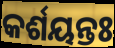
କର୍ଶୟନ୍ତଃ